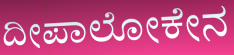
ದೀಪಾಲೋಕೇನ